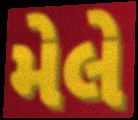
મેલે